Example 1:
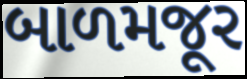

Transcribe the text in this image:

બાળમજૂર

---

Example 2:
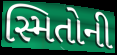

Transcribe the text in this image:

સ્મિતોની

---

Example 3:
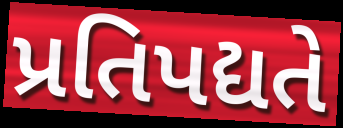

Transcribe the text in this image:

પ્રતિપદ્યતે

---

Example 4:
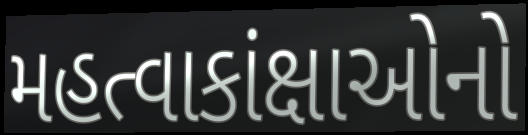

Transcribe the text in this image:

મહત્વાકાંક્ષાઓનો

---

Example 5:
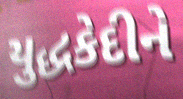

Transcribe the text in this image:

યુદ્ધકેદીને